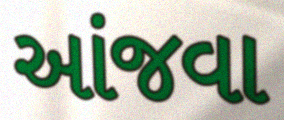
આંજવા